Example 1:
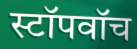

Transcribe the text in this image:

स्टॉपवॉच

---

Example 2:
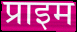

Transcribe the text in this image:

प्राइम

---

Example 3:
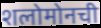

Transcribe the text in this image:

शलोमोनची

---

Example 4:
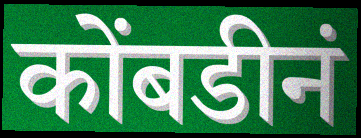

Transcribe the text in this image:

कोंबडीनं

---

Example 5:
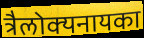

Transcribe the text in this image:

त्रैलोक्यनायका